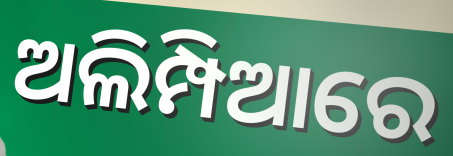
ଅଲିମ୍ପିଆରେ